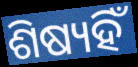
ଶିଷ୍ୟହିଁ